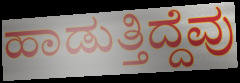
ಹಾಡುತ್ತಿದ್ದೆವು